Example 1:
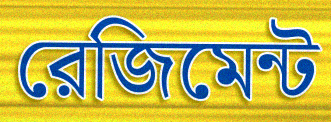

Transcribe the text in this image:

রেজিমেন্ট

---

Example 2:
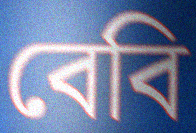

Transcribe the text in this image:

বেবি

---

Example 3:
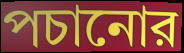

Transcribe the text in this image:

পচানোর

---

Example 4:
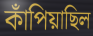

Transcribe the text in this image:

কাঁপিয়াছিল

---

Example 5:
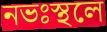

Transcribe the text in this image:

নভঃস্থলে